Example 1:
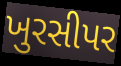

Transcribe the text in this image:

ખુરસીપર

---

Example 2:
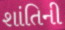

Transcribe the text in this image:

શાંતિની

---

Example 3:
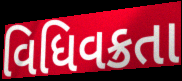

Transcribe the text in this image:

વિધિવક્રતા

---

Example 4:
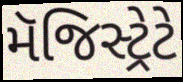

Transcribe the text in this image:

મૅજિસ્ટ્રેટે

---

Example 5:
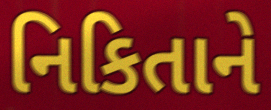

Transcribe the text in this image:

નિકિતાને